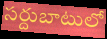
సర్దుబాటులో